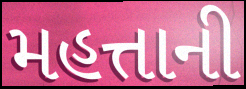
મહત્તાની